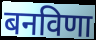
बनविणा